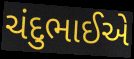
ચંદુભાઈએ